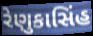
રેણુકાસિંહ